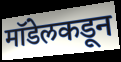
मॉडेलकडून